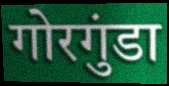
गोरगुंडा